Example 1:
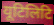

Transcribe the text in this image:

यूटिलिटि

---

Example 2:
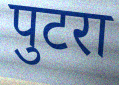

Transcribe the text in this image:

पुटरा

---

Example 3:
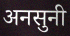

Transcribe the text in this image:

अनसुनी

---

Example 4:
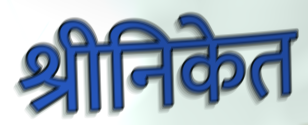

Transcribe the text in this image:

श्रीनिकेत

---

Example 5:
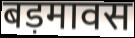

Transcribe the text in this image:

बड़मावस